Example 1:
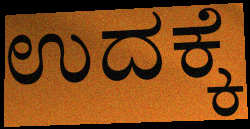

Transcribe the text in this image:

ಉದಕ್ಕೆ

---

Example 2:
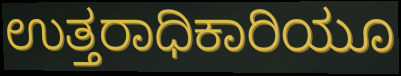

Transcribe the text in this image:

ಉತ್ತರಾಧಿಕಾರಿಯೂ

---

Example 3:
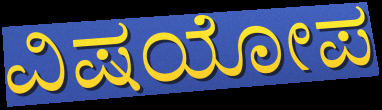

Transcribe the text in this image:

ವಿಷಯೋಪ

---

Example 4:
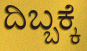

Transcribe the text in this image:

ದಿಬ್ಬಕ್ಕೆ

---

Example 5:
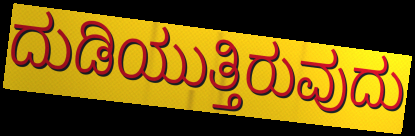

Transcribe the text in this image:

ದುಡಿಯುತ್ತಿರುವುದು